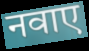
नवाए